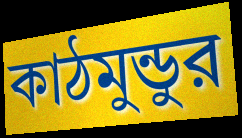
কাঠমুন্ডুর